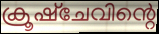
ക്രൂഷ്ചേവിന്റെ